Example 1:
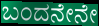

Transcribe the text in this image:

ಬಂದನೇನೇ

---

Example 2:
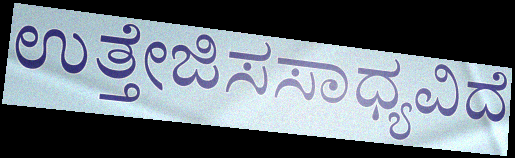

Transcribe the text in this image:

ಉತ್ತೇಜಿಸಸಾಧ್ಯವಿದೆ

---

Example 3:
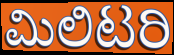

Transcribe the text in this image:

ಮಿಲಿಟರಿ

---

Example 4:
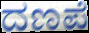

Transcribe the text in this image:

ದಣಪೆ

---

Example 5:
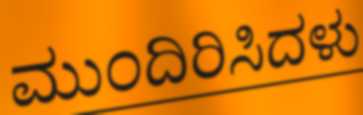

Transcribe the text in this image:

ಮುಂದಿರಿಸಿದಳು